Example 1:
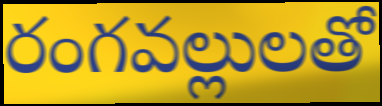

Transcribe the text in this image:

రంగవల్లులతో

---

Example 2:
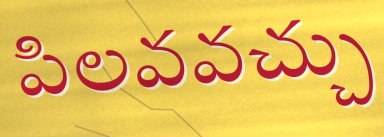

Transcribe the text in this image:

పిలవవచ్చు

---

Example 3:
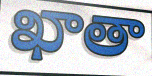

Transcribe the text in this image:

ఖాతా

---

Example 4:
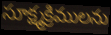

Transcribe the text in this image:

సూక్ష్మక్రిములను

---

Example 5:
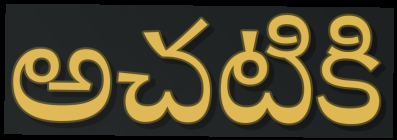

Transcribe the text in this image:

అచటికి